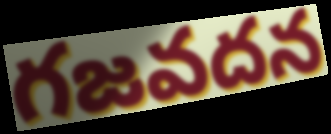
గజవదన